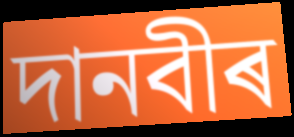
দানবীৰ